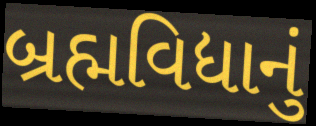
બ્રહ્મવિદ્યાનું